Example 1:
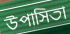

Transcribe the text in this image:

উপাসিতা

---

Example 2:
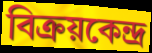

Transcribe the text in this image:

বিক্রয়কেন্দ্র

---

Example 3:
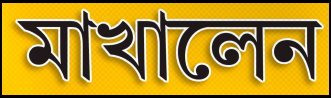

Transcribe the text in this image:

মাখালেন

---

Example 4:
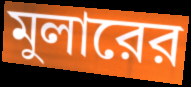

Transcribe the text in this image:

মুলারের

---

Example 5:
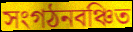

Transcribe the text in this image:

সংগঠনবঞ্চিত